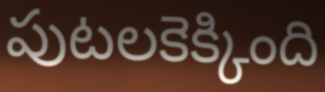
పుటలకెక్కింది